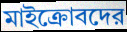
মাইক্রোবদের